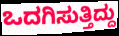
ಒದಗಿಸುತ್ತಿದ್ದು